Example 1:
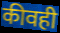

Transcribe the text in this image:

कीवही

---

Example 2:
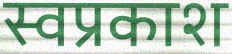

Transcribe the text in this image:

स्वप्रकाश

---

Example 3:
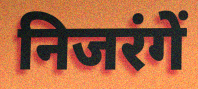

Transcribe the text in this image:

निजरंगें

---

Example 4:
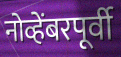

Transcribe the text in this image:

नोव्हेंबरपूर्वी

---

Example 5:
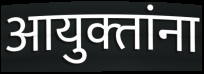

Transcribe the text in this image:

आयुक्‍तांना